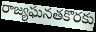
రాజ్యఘనతకొరకు